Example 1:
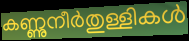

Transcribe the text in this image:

കണ്ണുനീർതുള്ളികൾ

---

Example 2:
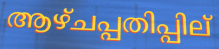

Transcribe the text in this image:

ആഴ്ചപ്പതിപ്പില്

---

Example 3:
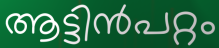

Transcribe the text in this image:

ആട്ടിൻപറ്റം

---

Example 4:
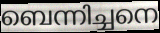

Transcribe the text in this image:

ബെന്നിച്ചനെ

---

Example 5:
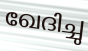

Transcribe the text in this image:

ഖേദിച്ചു